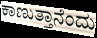
ಕಾಣುತ್ತಾನೆಂದು